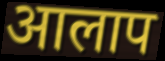
आलाप